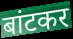
बांटकर